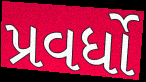
પ્રવર્ધો